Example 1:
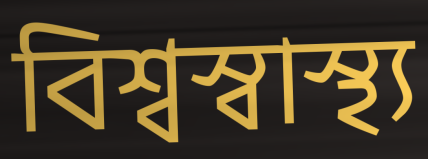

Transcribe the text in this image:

বিশ্বস্বাস্থ্য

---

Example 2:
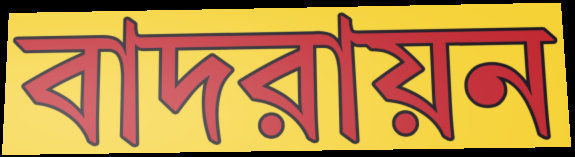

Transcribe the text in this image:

বাদরায়ন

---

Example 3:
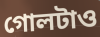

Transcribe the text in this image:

গোলটাও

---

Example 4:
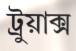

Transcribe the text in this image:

ট্রুয়াক্স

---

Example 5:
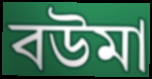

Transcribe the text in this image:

বউমা